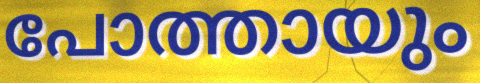
പോത്തായും